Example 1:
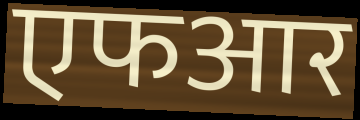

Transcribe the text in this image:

एफआर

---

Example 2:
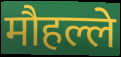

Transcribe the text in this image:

मौहल्ले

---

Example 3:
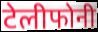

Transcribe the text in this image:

टेलीफोनी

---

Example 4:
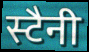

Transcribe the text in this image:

स्टैनी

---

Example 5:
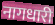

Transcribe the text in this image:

नागधारी